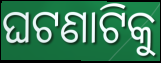
ଘଟଣାଟିକୁ